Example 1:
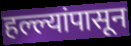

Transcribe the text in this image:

हल्ल्यांपासून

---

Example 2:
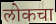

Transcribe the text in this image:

लोकचा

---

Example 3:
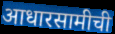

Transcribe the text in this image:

आधारसामीची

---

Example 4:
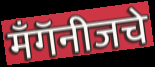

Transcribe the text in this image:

मँगॅनीजचे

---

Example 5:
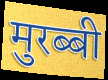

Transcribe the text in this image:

मुरब्बी